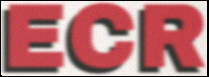
ECR